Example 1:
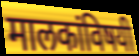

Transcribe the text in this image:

मालकांविषयी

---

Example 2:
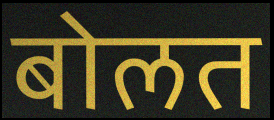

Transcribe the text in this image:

बोलत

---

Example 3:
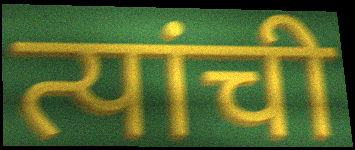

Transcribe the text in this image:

त्यांची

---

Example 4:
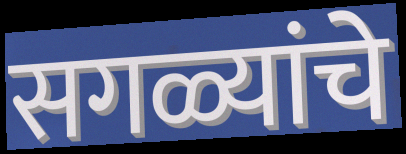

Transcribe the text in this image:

सगळ्यांचे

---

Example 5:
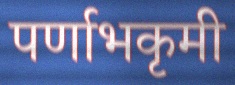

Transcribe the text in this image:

पर्णाभकृमी